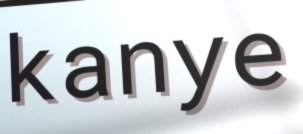
kanye